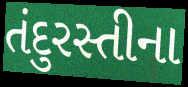
તંદુરસ્તીના